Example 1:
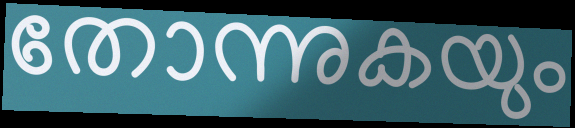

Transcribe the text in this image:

തോന്നുകയും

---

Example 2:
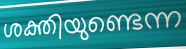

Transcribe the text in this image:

ശക്തിയുണ്ടെന്ന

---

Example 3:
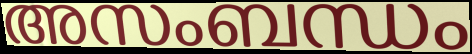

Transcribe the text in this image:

അസംബന്ധം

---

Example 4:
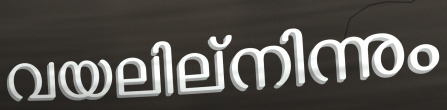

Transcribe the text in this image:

വയലില്നിന്നും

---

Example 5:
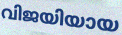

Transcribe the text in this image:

വിജയിയായ